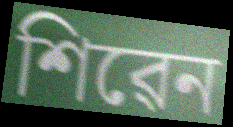
শিৱেন